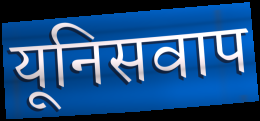
यूनिसवाप